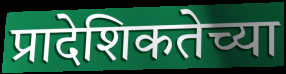
प्रादेशिकतेच्या